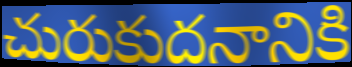
చురుకుదనానికి